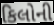
કિલોની